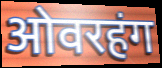
ओवरहंग